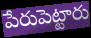
పేరుపెట్టారు